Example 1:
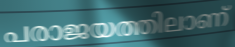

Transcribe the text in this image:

പരാജയത്തിലാണ്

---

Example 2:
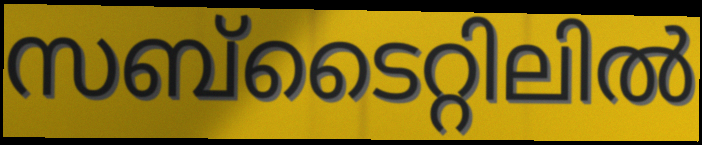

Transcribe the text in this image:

സബ്ടൈറ്റിലിൽ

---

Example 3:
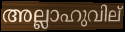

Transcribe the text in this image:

അല്ലാഹുവില്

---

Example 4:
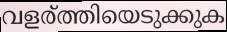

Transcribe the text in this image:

വളര്ത്തിയെടുക്കുക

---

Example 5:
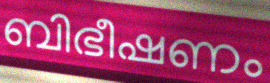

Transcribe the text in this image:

ബിഭീഷണം